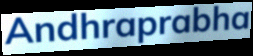
Andhraprabha